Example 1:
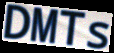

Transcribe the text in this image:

DMTs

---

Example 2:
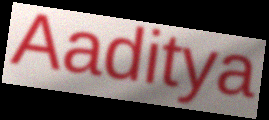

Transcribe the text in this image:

Aaditya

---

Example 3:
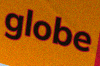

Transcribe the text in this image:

globe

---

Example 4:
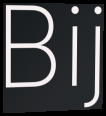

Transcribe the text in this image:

Bij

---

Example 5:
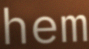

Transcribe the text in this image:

hem